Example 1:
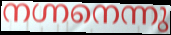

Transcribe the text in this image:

നഗ്നനെന്നു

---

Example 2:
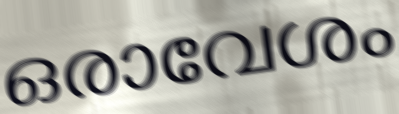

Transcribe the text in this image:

ഒരാവേശം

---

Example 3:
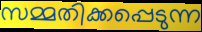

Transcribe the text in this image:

സമ്മതിക്കപ്പെടുന്ന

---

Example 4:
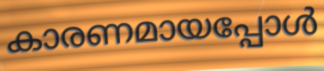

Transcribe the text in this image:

കാരണമായപ്പോൾ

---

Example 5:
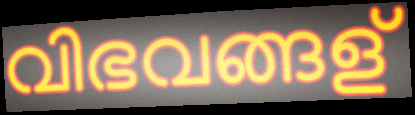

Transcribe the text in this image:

വിഭവങ്ങള്